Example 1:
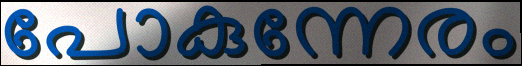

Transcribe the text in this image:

പോകുന്നേരം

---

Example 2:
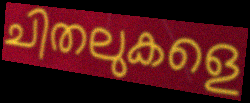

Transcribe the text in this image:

ചിതലുകളെ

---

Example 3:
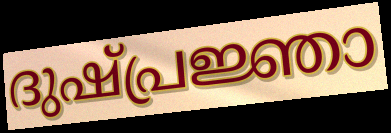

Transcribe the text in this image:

ദുഷ്പ്രജ്ഞാ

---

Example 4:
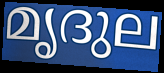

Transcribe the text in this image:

മൃദുല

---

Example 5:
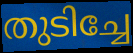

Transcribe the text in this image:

തുടിച്ചേ